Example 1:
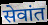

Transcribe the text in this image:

सेवांत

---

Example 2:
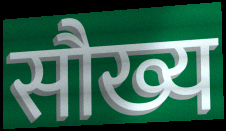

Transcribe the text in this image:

सौख्य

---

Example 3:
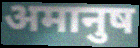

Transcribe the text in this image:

अमानुष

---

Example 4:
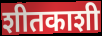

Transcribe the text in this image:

शीतकाशी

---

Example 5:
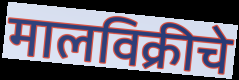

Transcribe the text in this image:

मालविक्रीचे